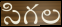
సిగల